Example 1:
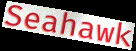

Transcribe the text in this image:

Seahawk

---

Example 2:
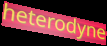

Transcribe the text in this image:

heterodyne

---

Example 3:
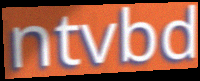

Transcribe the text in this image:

ntvbd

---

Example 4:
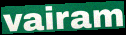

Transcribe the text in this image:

vairam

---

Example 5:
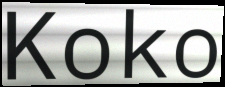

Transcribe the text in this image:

Koko